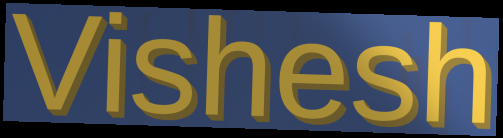
Vishesh